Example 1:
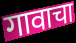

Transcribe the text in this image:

गावाचा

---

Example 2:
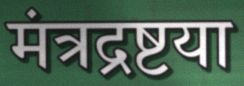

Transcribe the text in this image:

मंत्रद्रष्टया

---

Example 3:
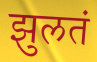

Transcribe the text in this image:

झुलतं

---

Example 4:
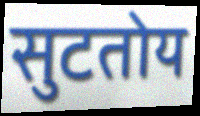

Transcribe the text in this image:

सुटतोय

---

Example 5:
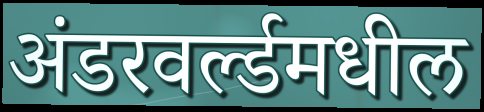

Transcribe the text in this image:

अंडरवर्ल्डमधील